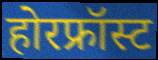
होरफ्रॉस्ट